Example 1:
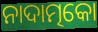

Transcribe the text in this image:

ନାଦାତ୍ମକୋ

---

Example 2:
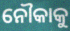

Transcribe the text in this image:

ନୌକାକୁ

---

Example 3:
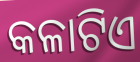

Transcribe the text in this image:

କଳାଟିଏ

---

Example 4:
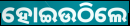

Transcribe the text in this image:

ହୋଇଉଠିଲେ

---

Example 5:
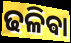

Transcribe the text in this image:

ଢଳିଵା